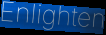
Enlighten